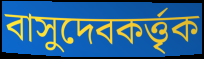
বাসুদেবকর্ত্তৃক